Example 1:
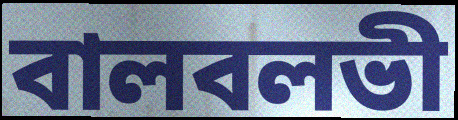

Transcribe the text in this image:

বালবলভী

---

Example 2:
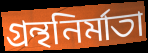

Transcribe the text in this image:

গ্রন্থনির্মাতা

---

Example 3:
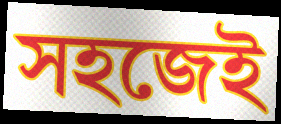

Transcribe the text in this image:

সহজেই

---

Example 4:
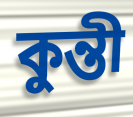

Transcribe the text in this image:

কুন্তী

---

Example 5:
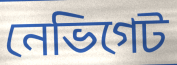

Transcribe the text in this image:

নেভিগেট